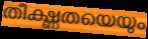
തീക്ഷ്ണതയെയും